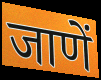
जाणें